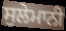
ਸੁਲੇਮਾਨੀ